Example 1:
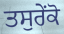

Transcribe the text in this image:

ਤਸੁਰੇਂਕੋ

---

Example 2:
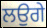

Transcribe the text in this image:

ਲਉਗੇ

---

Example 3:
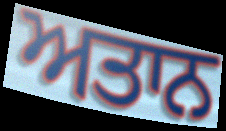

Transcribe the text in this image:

ਅਤਾਨ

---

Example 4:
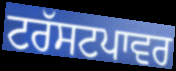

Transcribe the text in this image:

ਟਰੱਸਟਪਾਵਰ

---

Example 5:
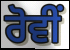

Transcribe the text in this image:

ਰੋਵੀਂ